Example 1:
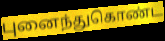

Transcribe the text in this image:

புனைந்துகொண்ட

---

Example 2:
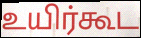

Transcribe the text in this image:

உயிர்கூட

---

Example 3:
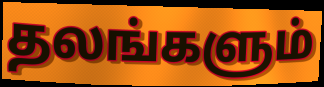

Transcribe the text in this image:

தலங்களும்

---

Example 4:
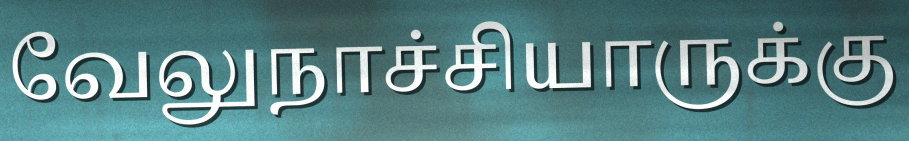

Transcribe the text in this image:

வேலுநாச்சியாருக்கு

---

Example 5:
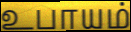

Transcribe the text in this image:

உபாயம்